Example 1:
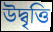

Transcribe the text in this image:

উদ্বৃত্তি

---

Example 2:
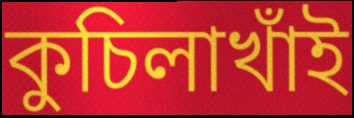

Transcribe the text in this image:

কুচিলাখাঁই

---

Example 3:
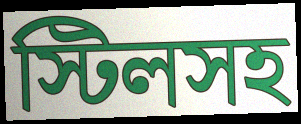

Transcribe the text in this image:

স্টিলসহ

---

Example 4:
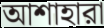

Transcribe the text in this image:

আশাহারা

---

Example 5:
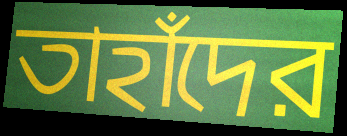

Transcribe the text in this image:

তাহাঁদের